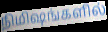
நிமிஷங்களில்